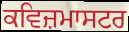
ਕਵਿਜ਼ਮਾਸਟਰ